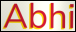
Abhi